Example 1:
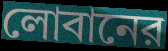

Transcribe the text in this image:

লোবানের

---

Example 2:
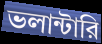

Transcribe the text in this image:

ভলান্টারি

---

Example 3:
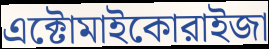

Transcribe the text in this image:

এক্টোমাইকোরাইজা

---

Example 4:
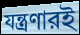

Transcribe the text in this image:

যন্ত্রণারই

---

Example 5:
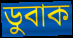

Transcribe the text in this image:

ডুবাক